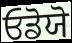
ਓਡੋਯੋ